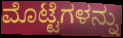
ಮೊಟ್ಟೆಗಳನ್ನು